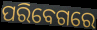
ପରିବେଗରେ